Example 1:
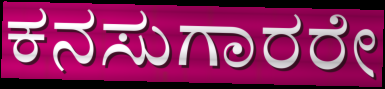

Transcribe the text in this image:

ಕನಸುಗಾರರೇ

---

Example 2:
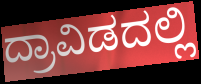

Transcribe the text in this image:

ದ್ರಾವಿಡದಲ್ಲಿ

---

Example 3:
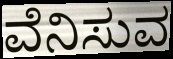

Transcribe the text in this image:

ವೆನಿಸುವ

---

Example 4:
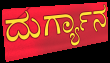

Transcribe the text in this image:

ದುರ್ಗ್ಯಾನ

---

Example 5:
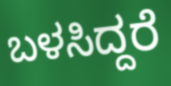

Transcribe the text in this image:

ಬಳಸಿದ್ದರೆ